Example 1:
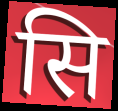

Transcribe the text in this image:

सि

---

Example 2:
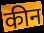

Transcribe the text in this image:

कीन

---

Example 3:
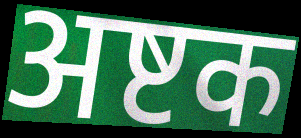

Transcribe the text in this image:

अष्टक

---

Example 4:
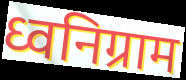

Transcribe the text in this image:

ध्वनिग्राम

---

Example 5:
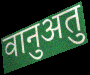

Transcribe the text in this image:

वानुअतु